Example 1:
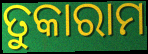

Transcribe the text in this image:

ତୁକାରାମ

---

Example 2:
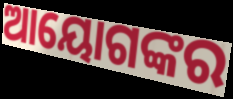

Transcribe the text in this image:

ଆୟୋଗଙ୍କର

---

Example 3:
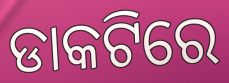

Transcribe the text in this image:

ଡାକଟିରେ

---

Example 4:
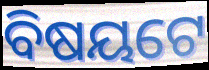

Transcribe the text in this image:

ବିଷୟଟେ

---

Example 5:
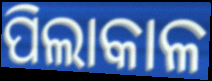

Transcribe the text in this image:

ପିଲାକାଳ